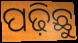
ପଢ଼ିଛୁ